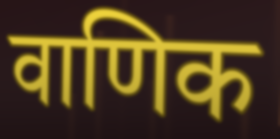
वाणिक